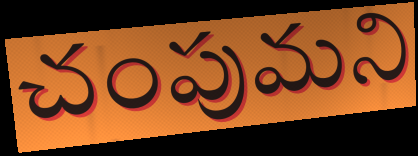
చంపుమని